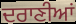
ਦਰਾਣੀਆਂ